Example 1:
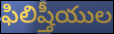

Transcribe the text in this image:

ఫిలిష్తీయుల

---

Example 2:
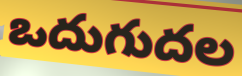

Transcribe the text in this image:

ఒదుగుదల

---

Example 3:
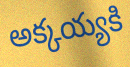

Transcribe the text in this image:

అక్కయ్యకి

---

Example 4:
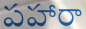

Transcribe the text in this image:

పహారా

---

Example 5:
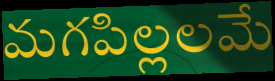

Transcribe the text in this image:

మగపిల్లలమే